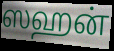
ஸஹன்